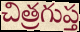
చిత్రగుప్త